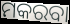
ମକରବା